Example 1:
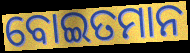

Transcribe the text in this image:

ବୋଇତମାନ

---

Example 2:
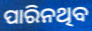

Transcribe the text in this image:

ପାରିନଥିବ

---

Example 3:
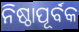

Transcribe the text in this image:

ନିଷ୍ଠାପୂର୍ବକ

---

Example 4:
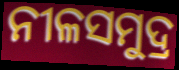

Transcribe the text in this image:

ନୀଳସମୁଦ୍ର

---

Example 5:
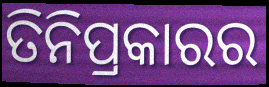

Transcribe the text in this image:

ତିନିପ୍ରକାରର